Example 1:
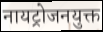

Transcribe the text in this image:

नायट्रोजनयुक्त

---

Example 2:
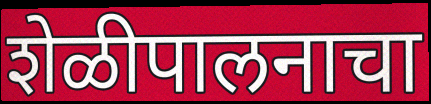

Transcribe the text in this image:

शेळीपालनाचा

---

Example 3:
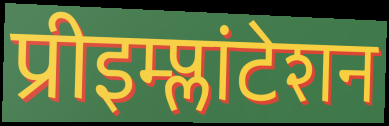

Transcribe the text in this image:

प्रीइम्प्लांटेशन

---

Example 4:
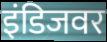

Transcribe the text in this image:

इंडिजवर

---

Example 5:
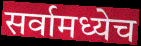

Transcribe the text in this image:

सर्वामध्येच